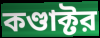
কণ্ডাক্টর